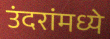
उंदरांमध्ये